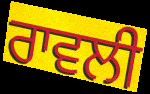
ਰਾਵਲੀ